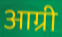
आग्री